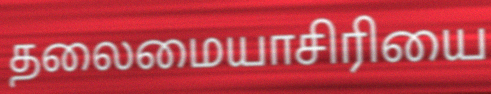
தலைமையாசிரியை